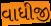
વાધીજી